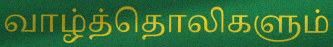
வாழ்த்தொலிகளும்